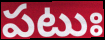
పటుః